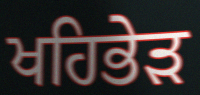
ਖਹਿਭੇੜ